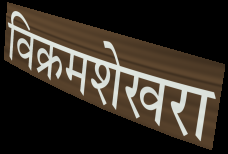
विक्रमशेखरा